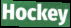
Hockey